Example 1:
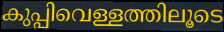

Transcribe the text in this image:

കുപ്പിവെള്ളത്തിലൂടെ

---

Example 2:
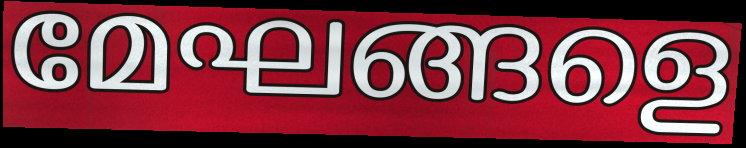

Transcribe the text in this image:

മേഘങ്ങളെ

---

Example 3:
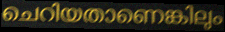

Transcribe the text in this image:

ചെറിയതാണെങ്കിലും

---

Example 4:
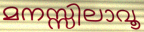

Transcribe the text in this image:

മനസ്സിലാവൂ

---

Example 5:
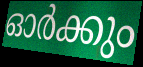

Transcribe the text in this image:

ഓർക്കും